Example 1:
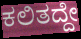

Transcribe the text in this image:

ಕಲಿತದ್ದೇ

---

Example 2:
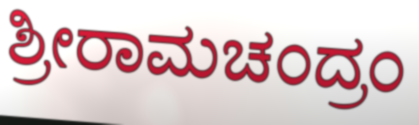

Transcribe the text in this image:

ಶ್ರೀರಾಮಚಂದ್ರಂ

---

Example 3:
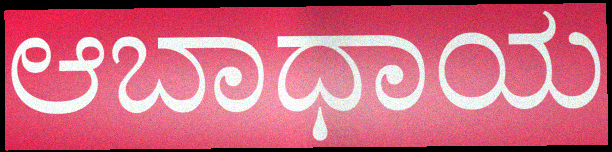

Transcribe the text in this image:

ಆಬಾಧಾಯ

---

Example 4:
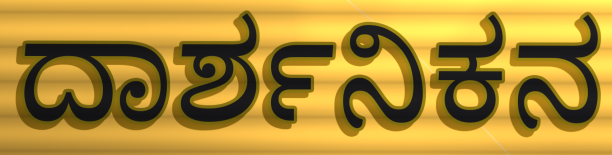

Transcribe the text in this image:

ದಾರ್ಶನಿಕನ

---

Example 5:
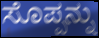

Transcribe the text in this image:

ಸೊಪ್ಪನ್ನು